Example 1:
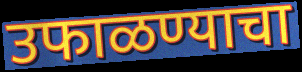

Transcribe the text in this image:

उफाळण्याचा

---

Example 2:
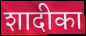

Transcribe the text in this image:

शादीका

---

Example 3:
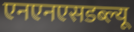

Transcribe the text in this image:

एनएनएसडब्ल्यू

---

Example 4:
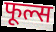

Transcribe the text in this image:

फूल्स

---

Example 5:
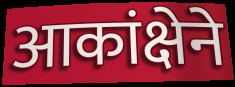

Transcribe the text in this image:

आकांक्षेने